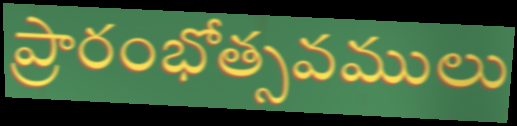
ప్రారంభోత్సవములు